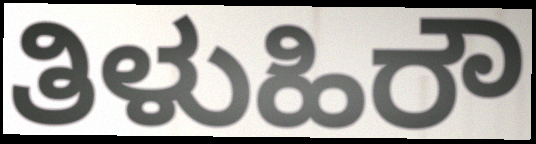
ತಿಳುಹಿರೌ